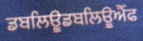
ਡਬਲਿਊਡਬਲਿਊਐੱਫ